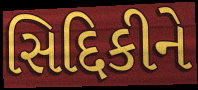
સિદ્દિકીને